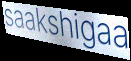
saakshigaa